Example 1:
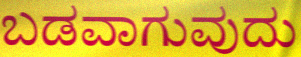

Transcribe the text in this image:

ಬಡವಾಗುವುದು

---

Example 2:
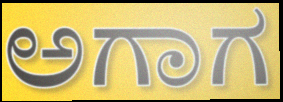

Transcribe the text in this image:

ಅಗಾಗ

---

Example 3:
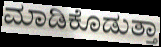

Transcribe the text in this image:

ಮಾಡಿಕೊಡುತ್ತಾ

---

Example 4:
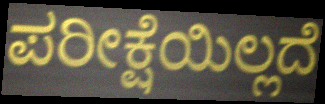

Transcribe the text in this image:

ಪರೀಕ್ಷೆಯಿಲ್ಲದೆ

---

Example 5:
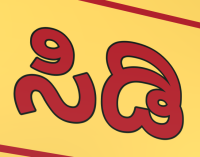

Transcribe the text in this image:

ಸಿಡಿ